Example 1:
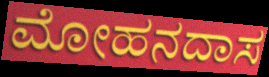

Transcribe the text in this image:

ಮೋಹನದಾಸ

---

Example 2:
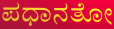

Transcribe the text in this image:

ಪಧಾನತೋ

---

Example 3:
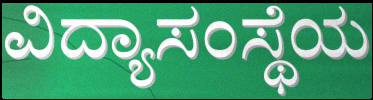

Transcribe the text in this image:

ವಿದ್ಯಾಸಂಸ್ಥೆಯ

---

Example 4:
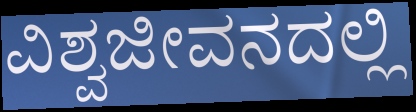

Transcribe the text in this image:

ವಿಶ್ವಜೀವನದಲ್ಲಿ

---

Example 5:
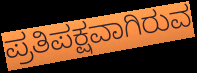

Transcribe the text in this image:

ಪ್ರತಿಪಕ್ಷವಾಗಿರುವ